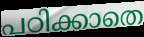
പഠിക്കാതെ